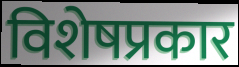
विशेषप्रकार